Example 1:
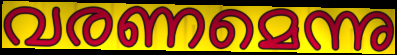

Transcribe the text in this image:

വരണമെന്നു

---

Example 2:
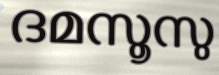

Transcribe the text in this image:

ദമസൂസു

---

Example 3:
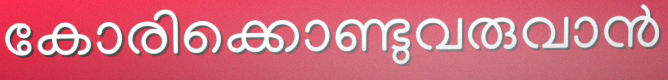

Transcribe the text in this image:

കോരിക്കൊണ്ടുവരുവാൻ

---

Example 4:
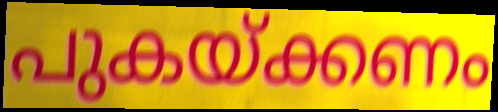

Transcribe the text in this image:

പുകയ്ക്കണം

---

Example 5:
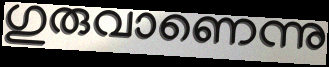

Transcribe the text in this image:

ഗുരുവാണെന്നു